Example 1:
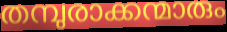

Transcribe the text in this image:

തമ്പുരാക്കന്മാരും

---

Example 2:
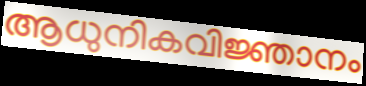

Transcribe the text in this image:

ആധുനികവിജ്ഞാനം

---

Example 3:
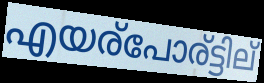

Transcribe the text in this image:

എയര്പോര്ട്ടില്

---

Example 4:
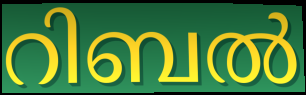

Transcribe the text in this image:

റിബൽ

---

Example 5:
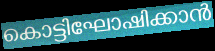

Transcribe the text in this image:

കൊട്ടിഘോഷിക്കാൻ